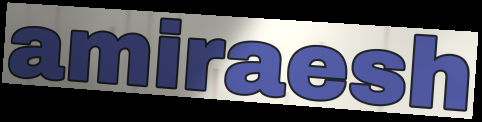
amiraesh